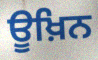
ਊਖ਼ਿਨ